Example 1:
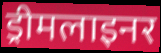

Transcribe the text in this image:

ड्रीमलाइनर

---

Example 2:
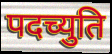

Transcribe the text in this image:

पदच्युति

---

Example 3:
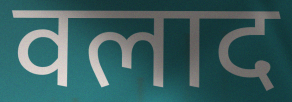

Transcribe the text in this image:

वलाद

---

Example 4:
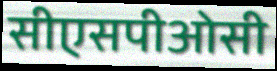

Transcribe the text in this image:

सीएसपीओसी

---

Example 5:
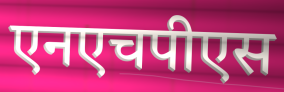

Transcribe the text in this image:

एनएचपीएस